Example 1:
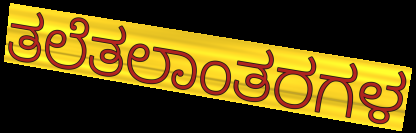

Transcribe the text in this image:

ತಲೆತಲಾಂತರಗಳ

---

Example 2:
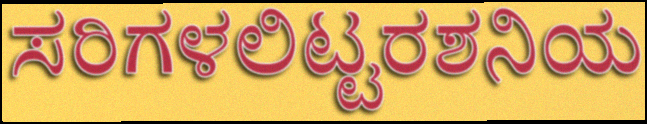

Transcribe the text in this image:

ಸರಿಗಳಲಿಟ್ಟರಶನಿಯ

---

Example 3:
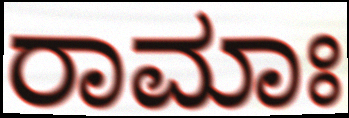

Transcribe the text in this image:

ರಾಮಾಃ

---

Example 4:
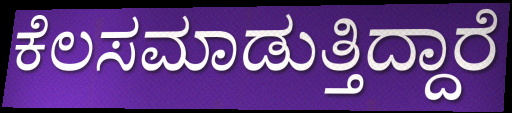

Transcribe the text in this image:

ಕೆಲಸಮಾಡುತ್ತಿದ್ದಾರೆ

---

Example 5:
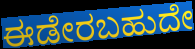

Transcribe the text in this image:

ಈಡೇರಬಹುದೇ